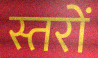
स्तरों